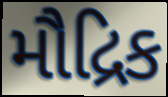
મૌદ્રિક